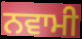
ਨਵਾਮੀ